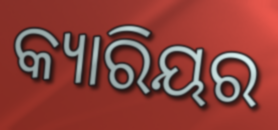
କ୍ୟାରିୟର